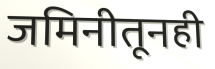
जमिनीतूनही